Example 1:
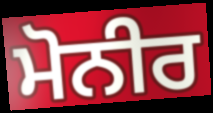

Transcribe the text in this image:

ਮੋਨੀਰ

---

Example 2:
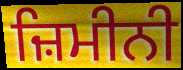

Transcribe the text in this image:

ਜ਼ਿਮੀਨੀ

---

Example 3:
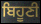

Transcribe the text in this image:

ਬਿਹੂਣੀ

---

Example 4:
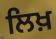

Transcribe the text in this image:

ਲਿਖ਼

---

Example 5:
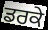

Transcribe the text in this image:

ਡਰਕੇ